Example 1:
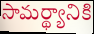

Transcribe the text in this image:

సామర్థ్యానికి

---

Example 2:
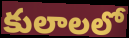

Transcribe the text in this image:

కులాలలో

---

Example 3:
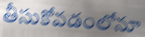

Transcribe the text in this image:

తీసుకోవడంలోనూ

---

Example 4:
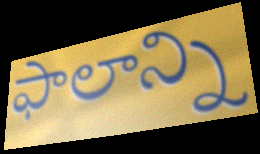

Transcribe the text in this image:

ఫాలాన్ని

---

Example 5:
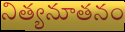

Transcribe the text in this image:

నిత్యనూతనం